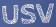
USV